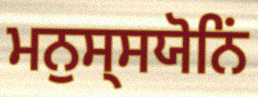
ਮਨੁਸ੍ਸਯੋਨਿਂ